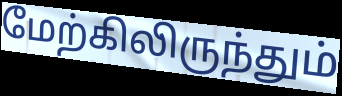
மேற்கிலிருந்தும்